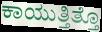
ಕಾಯುತ್ತಿತ್ತೊ